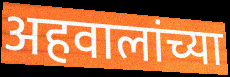
अहवालांच्या